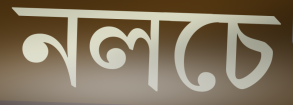
নলচে